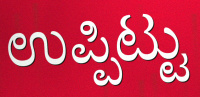
ಉಪ್ಪಿಟ್ಟು